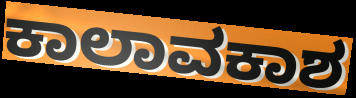
ಕಾಲಾವಕಾಶ